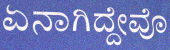
ಏನಾಗಿದ್ದೇವೊ